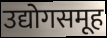
उद्योगसमूह